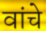
वांचे